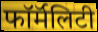
फॉर्मॅलिटी